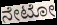
ನೇಟೋ